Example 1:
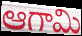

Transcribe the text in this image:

ఆగామి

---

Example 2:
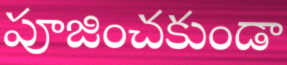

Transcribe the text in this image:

పూజించకుండా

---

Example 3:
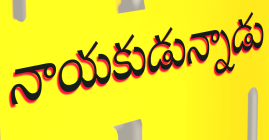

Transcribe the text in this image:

నాయకుడున్నాడు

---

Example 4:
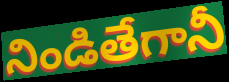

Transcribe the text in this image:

నిండితేగానీ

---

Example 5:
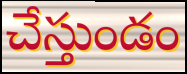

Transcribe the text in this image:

చేస్తుండం